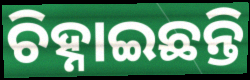
ଚିହ୍ନାଇଛନ୍ତି